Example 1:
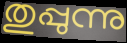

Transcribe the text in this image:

തുപ്പുന്നു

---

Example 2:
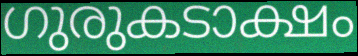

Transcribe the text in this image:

ഗുരുകടാക്ഷം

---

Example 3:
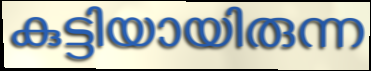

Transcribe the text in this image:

കുട്ടിയായിരുന്ന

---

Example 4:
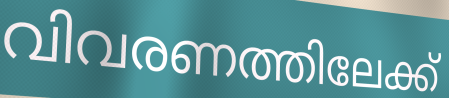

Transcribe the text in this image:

വിവരണത്തിലേക്ക്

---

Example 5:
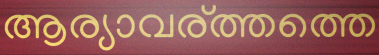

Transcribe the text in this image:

ആര്യാവര്ത്തത്തെ